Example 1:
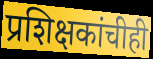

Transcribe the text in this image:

प्रशिक्षकांचीही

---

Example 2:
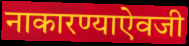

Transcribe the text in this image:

नाकारण्याऐवजी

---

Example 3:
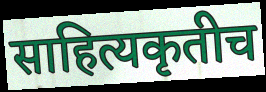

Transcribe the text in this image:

साहित्यकृतीच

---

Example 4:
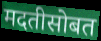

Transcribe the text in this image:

मदतीसोबत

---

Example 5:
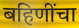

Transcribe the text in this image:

बहिणींचा